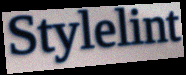
Stylelint